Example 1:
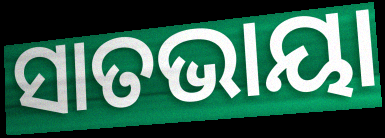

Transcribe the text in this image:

ସାତଭାୟା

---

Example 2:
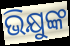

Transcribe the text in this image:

ଭିକ୍ଷୁଙ୍କ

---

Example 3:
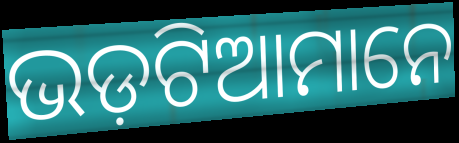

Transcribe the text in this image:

ଭଡ଼ଟିଆମାନେ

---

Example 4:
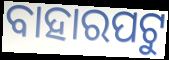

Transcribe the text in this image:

ବାହାରପଟୁ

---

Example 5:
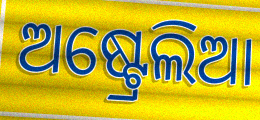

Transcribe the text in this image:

ଅଷ୍ଟ୍ରେଲିଆ